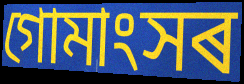
গোমাংসৰ